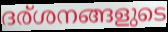
ദര്ശനങ്ങളുടെ